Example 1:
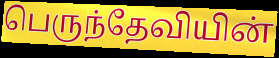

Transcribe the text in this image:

பெருந்தேவியின்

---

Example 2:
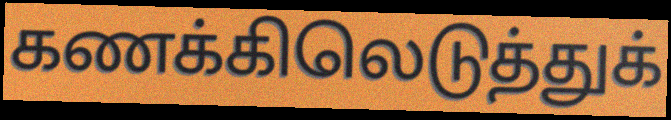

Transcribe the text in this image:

கணக்கிலெடுத்துக்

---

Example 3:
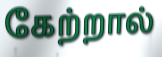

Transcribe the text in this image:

கேற்றால்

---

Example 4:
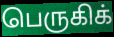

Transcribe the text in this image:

பெருகிக்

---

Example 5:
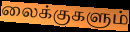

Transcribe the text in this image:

லைக்குகளும்